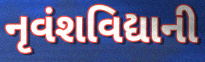
નૃવંશવિદ્યાની